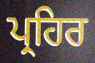
ਪ੍ਰਹਿਰ